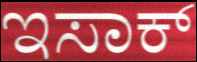
ಇಸಾಕ್